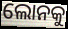
ଲୋନକୁ